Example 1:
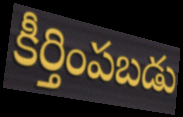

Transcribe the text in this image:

కీర్తింపబడు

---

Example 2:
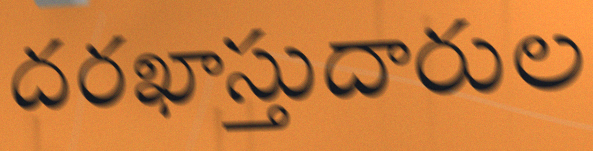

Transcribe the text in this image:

దరఖాస్తుదారుల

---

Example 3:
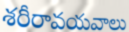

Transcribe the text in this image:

శరీరావయవాలు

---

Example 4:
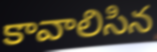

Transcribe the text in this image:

కావాలిసిన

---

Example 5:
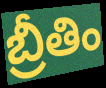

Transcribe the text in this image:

బ్రీతిం